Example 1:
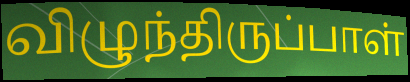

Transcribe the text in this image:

விழுந்திருப்பாள்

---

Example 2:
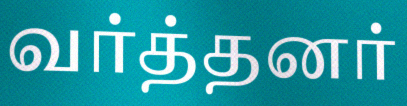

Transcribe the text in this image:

வர்த்தனர்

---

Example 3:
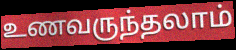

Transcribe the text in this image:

உணவருந்தலாம்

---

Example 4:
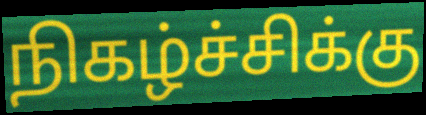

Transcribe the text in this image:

நிகழ்ச்சிக்கு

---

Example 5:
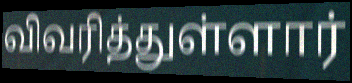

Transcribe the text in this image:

விவரித்துள்ளார்